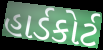
હાર્ડકોર્ટ